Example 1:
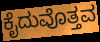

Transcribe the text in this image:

ಕೈದುವೊತ್ತವ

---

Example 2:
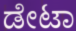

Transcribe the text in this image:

ಡೇಟಾ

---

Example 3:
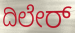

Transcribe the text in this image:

ದಿಲೇರ್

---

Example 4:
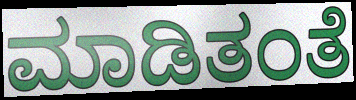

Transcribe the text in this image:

ಮಾಡಿತಂತೆ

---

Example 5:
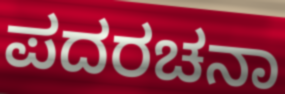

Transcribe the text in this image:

ಪದರಚನಾ